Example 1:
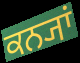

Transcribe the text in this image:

ਕਨ੍ਯਾਂ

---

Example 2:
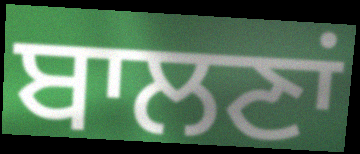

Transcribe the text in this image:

ਬਾਲਣਾਂ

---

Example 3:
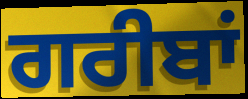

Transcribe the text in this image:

ਗਰੀਬਾਂ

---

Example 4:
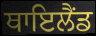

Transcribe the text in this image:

ਥਾਇਲੈਂਡ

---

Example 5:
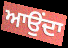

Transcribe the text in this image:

ਆਉਂਦਾ